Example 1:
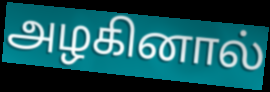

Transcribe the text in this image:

அழகினால்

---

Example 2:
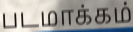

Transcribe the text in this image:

படமாக்கம்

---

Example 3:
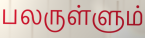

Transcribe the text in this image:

பலருள்ளும்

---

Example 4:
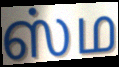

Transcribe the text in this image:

ஸ்ம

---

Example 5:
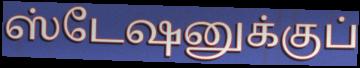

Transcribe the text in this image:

ஸ்டேஷனுக்குப்